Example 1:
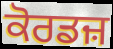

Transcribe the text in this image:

ਕੋਰਡਜ਼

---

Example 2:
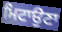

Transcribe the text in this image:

ਮਿਟਾਉਣਾ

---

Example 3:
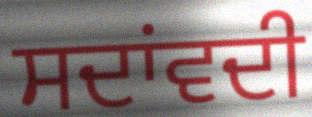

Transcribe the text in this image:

ਸਦਾਂਵਦੀ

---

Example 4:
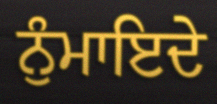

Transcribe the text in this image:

ਨੁੰਮਾਇਦੇ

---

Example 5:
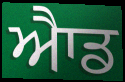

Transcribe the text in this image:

ਐਾਡ